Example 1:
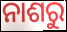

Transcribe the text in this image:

ନାଶରୁ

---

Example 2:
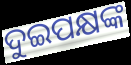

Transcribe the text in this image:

ଦୁଇପକ୍ଷଙ୍କ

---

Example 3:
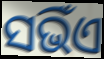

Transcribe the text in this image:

ସଭିଁଏ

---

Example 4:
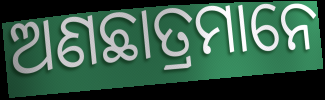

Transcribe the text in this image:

ଅଣଛାତ୍ରମାନେ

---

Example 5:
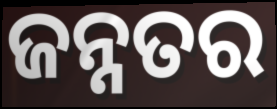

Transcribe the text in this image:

ଜନ୍ନତର